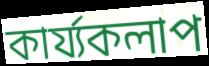
কাৰ্য্যকলাপ